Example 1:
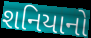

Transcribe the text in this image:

શનિયાનો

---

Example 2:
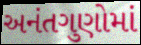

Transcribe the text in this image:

અનંતગુણોમાં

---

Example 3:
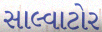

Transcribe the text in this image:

સાલ્વાટોર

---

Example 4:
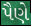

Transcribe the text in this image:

પૈણે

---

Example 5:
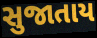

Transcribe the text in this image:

સુજાતાય